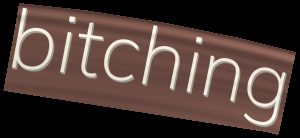
bitching